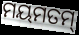
ମୟମତମ୍